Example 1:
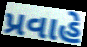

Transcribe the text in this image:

પ્રવાહે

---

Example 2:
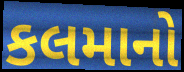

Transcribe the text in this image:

કલમાનો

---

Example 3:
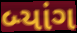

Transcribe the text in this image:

બ્યાંગ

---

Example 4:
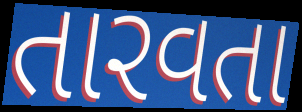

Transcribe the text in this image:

તારવતા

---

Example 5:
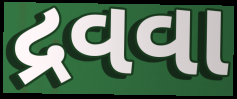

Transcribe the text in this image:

દ્રવવા